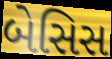
બેસિસ